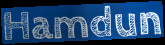
Hamdun